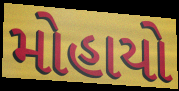
મોહાયો